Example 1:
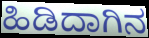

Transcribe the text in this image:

ಹಿಡಿದಾಗಿನ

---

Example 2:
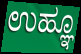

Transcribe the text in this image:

ಉಹ್ಞೂ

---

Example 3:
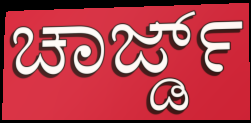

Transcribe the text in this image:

ಚಾರ್ಜ್ಡ್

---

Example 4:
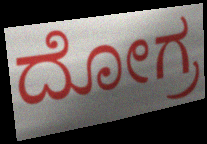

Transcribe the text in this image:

ದೋಗ್ರ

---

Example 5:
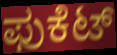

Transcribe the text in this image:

ಫುಕೆಟ್